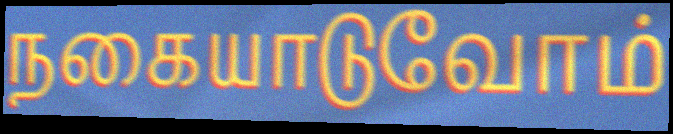
நகையாடுவோம்